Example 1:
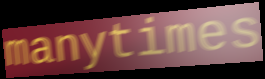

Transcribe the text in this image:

manytimes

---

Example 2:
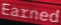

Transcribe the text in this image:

Earned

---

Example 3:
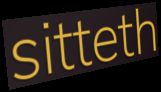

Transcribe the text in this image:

sitteth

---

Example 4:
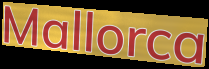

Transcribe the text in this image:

Mallorca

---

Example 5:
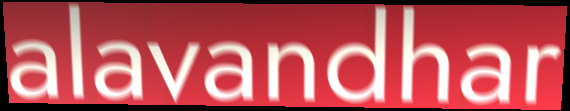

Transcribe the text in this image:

alavandhar